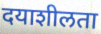
दयाशीलता